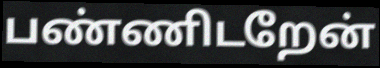
பண்ணிடறேன்